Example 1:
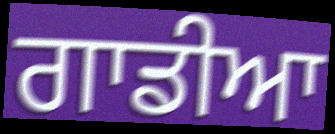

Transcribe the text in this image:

ਗਾਡੀਆ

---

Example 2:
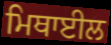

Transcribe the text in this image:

ਮਿਥਾਈਲ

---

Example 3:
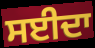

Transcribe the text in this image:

ਸਈਦਾ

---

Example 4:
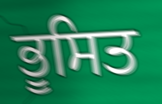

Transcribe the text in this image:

ਭੂਸਿਤ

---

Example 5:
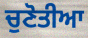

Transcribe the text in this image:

ਚੁਣੋਤੀਆ